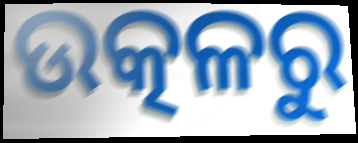
ଉତ୍କଳରୁ